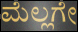
ಮೆಲ್ಲಗೇ